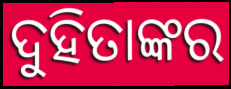
ଦୁହିତାଙ୍କର